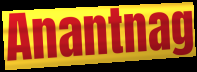
Anantnag